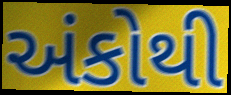
અંકોથી